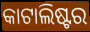
କାଟାଲିଷ୍ଟର